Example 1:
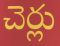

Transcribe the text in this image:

చెర్లు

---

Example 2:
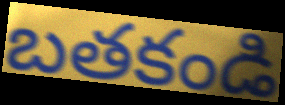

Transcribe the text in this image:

బతకండి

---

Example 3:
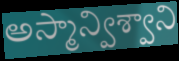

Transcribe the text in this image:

అస్మాన్విశ్వాని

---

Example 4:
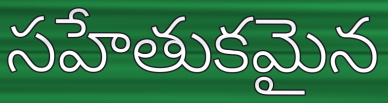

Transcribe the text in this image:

సహేతుకమైన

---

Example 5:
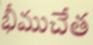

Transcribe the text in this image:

భీముచేత